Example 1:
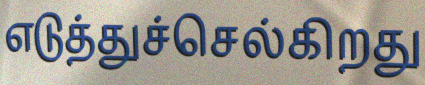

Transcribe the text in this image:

எடுத்துச்செல்கிறது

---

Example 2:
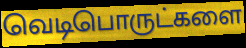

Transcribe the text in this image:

வெடிபொருட்களை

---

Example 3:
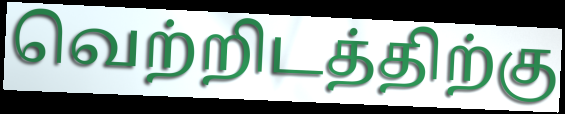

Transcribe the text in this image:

வெற்றிடத்திற்கு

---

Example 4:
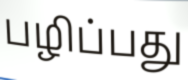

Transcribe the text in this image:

பழிப்பது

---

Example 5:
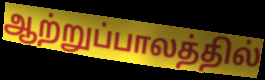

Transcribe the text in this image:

ஆற்றுப்பாலத்தில்